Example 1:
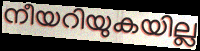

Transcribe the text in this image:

നീയറിയുകയില്ല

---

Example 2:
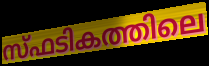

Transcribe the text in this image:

സ്ഫടികത്തിലെ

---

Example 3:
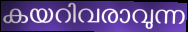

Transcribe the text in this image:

കയറിവരാവുന്ന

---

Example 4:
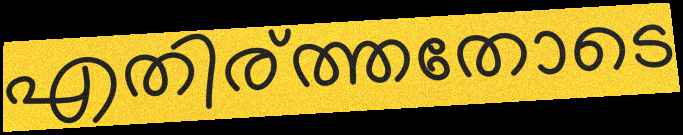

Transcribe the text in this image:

എതിര്ത്തതോടെ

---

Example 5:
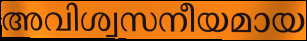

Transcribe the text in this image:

അവിശ്വസനീയമായ